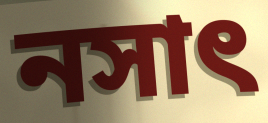
নসাৎ